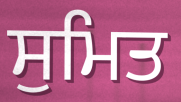
ਸੁਮਿਤ